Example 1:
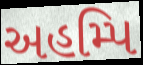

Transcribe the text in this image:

અહમ્પિ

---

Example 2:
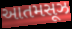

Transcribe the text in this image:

આતમસૂઝ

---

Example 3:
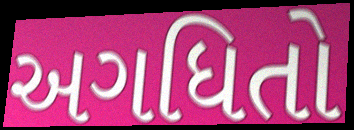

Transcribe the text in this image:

અગધિતો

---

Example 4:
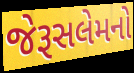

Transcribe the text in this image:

જેરૂસલેમનો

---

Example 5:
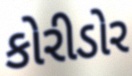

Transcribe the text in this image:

કોરીડોર